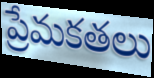
ప్రేమకతలు